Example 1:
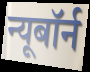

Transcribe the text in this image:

न्यूबॉर्न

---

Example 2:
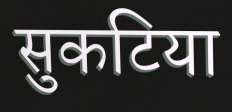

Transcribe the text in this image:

सुकटिया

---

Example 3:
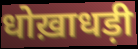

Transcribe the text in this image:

धोख़ाधड़ी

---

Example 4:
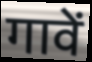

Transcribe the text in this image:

गावें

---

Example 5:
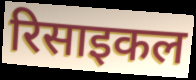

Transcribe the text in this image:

रिसाइकल